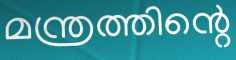
മന്ത്രത്തിന്റെ